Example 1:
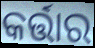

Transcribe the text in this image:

କର୍ତ୍ତାର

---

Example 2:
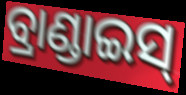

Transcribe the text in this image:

ବ୍ରାଣ୍ଡାଇସ୍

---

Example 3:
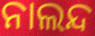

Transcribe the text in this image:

ନାଲନ୍ଦ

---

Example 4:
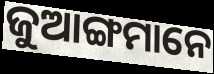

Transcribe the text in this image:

ଜୁଆଙ୍ଗମାନେ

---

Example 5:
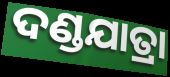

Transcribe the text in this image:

ଦଣ୍ଡଯାତ୍ରା